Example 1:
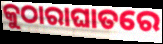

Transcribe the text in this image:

କୁଠାରାଘାତରେ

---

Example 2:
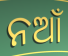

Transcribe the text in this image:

ନଆଁ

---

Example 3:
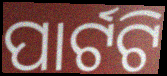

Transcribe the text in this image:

ପାର୍ଟଟି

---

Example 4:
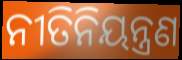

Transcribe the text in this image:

ନୀତିନିୟନ୍ତ୍ରଣ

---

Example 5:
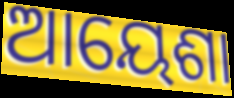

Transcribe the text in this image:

ଆୟେଶା